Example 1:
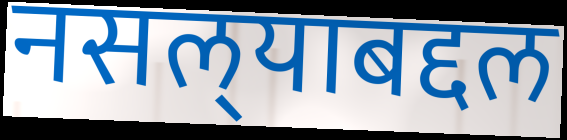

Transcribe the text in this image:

नसल्याबद्दल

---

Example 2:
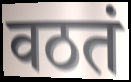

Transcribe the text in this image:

वठतं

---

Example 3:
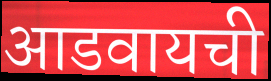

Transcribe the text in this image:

आडवायची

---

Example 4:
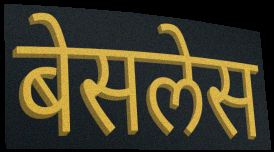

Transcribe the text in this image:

बेसलेस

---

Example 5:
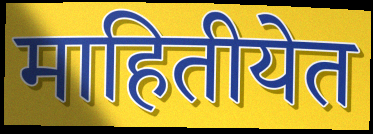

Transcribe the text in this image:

माहितीयेत